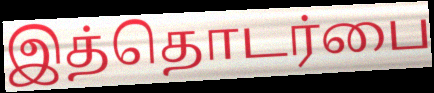
இத்தொடர்பை